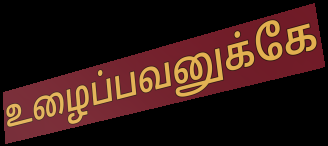
உழைப்பவனுக்கே